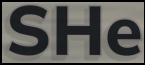
SHe